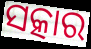
ସତ୍କାର